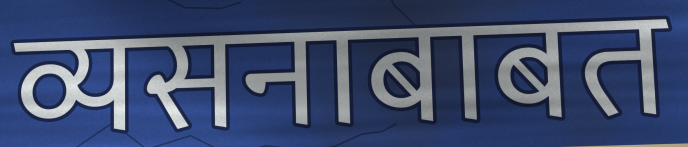
व्यसनाबाबत